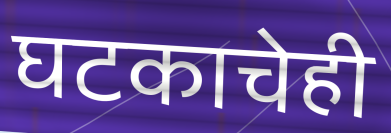
घटकाचेही